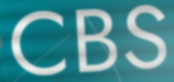
CBS